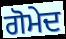
ਗੋਮੇਦ